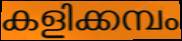
കളിക്കമ്പം